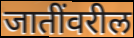
जातींवरील